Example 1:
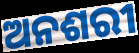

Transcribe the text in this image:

ଅନଶରୀ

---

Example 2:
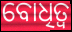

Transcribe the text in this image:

ବୋଧିତ୍ୱ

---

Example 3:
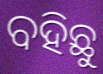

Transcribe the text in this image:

ବହିଛୁ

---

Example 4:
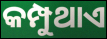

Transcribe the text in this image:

କମ୍ପୁଥାଏ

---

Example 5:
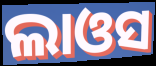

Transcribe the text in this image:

ଲାଓସ